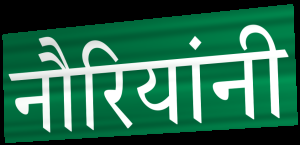
नौरियांनी